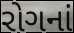
રોગનાં